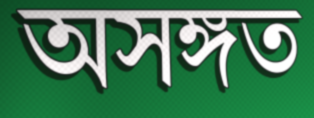
অসঙ্গত